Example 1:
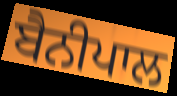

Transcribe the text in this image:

ਬੈਨੀਪਾਲ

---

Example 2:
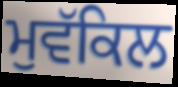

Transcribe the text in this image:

ਮੁਵੱਕਿਲ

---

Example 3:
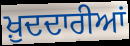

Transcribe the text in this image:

ਖ਼ੁਦਦਾਰੀਆਂ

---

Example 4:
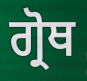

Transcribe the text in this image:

ਗ੍ਰੋਥ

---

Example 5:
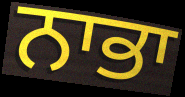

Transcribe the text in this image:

ਨਾਭਾ